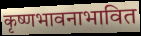
कृष्णभावनाभावित